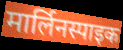
मार्लिनस्पाइक